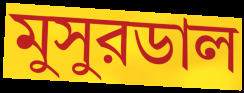
মুসুরডাল